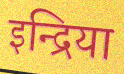
इन्द्रिया